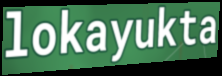
lokayukta